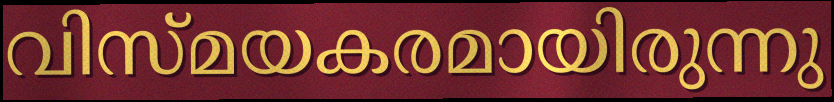
വിസ്മയകരമായിരുന്നു